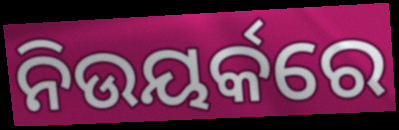
ନିଉୟର୍କରେ